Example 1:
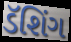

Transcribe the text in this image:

ડૅશિંગ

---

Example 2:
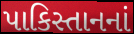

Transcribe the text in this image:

પાકિસ્તાનનાં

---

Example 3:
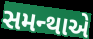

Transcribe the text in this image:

સમન્થાએ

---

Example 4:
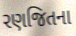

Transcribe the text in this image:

રણજિતના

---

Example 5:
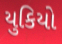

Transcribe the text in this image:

યુકિયો